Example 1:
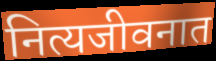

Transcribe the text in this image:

नित्यजीवनात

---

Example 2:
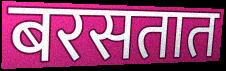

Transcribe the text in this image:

बरसतात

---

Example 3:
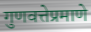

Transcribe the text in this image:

गुणवत्तेप्रमाणे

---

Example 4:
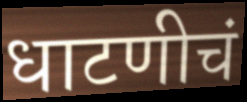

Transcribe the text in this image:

धाटणीचं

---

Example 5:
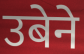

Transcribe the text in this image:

उबेने